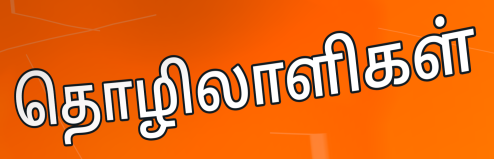
தொழிலாளிகள்